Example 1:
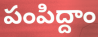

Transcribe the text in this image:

పంపిద్దాం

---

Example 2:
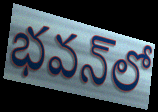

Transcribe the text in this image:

భవన్‌లో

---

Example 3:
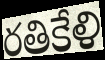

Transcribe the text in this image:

రతికేళి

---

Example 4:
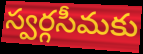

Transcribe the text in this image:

స్వర్గసీమకు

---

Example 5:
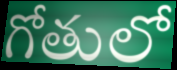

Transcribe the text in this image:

గోతులో